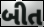
બીત